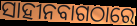
ସାହୀନବାଗଠାରେ